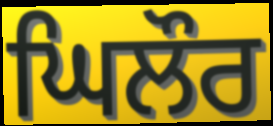
ਘਿਲੌਰ